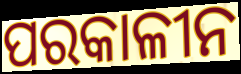
ପରକାଳୀନ